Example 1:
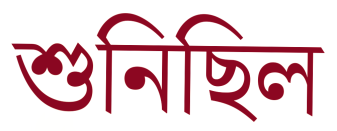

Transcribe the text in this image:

শুনিছিল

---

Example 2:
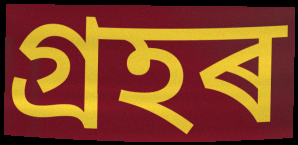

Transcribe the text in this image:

গ্ৰহৰ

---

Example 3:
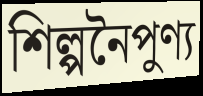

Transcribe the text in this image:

শিল্পনৈপুণ্য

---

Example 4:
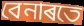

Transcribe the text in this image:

বেনাৰতে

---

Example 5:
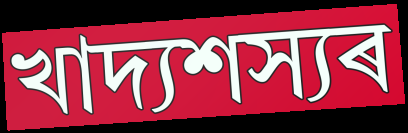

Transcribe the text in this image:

খাদ্যশস্যৰ